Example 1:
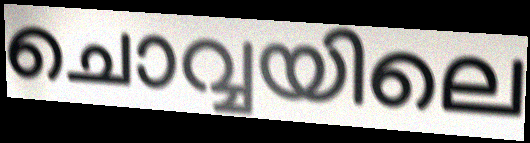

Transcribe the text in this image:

ചൊവ്വയിലെ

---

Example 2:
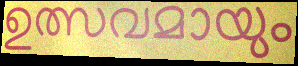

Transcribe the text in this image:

ഉത്സവമായും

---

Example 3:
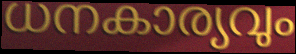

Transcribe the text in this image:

ധനകാര്യവും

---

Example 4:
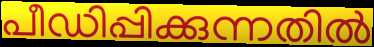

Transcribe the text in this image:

പീഡിപ്പിക്കുന്നതിൽ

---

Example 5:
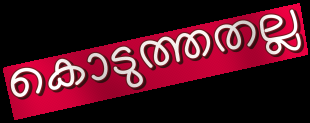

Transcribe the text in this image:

കൊടുത്തതല്ല